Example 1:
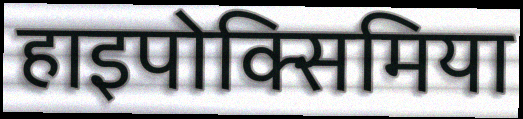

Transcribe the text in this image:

हाइपोक्सिमिया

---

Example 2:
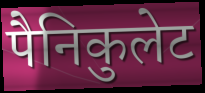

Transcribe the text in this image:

पैनिकुलेट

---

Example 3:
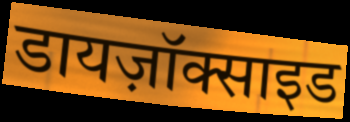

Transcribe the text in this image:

डायज़ॉक्साइड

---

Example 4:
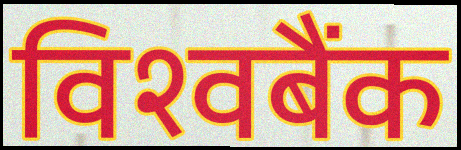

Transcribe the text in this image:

विश्वबैंक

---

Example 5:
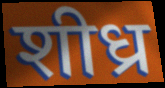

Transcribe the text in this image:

शीध्र